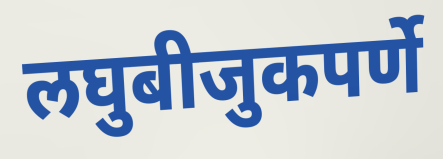
लघुबीजुकपर्णे